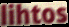
lihtos